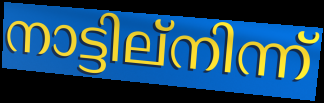
നാട്ടില്നിന്ന്